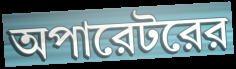
অপারেটরের